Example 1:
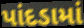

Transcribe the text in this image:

પાંદડામાં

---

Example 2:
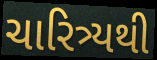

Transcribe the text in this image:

ચારિત્ર્યથી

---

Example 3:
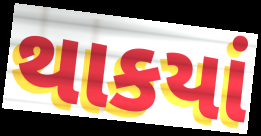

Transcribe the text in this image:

થાકયાં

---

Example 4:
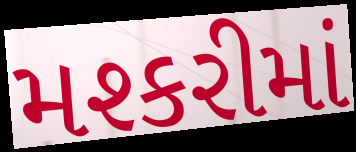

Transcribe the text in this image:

મશ્કરીમાં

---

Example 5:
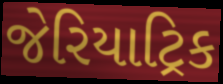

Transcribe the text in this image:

જેરિયાટ્રિક